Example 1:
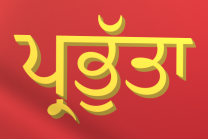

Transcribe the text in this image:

ਪ੍ਰਭੁੱਤਾ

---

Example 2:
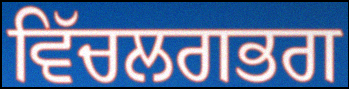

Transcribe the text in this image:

ਵਿੱਚਲਗਭਗ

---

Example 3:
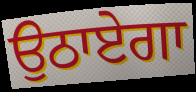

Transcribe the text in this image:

ਉਠਾਏਗਾ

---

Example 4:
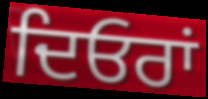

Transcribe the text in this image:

ਦਿਓਰਾਂ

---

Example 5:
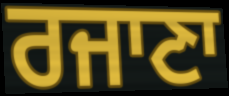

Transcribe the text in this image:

ਰਜਾਣਾ